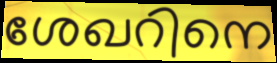
ശേഖറിനെ